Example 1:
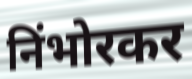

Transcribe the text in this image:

निंभोरकर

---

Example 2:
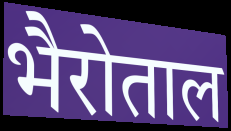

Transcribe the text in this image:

भैरोताल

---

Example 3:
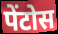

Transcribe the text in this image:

पेंटोस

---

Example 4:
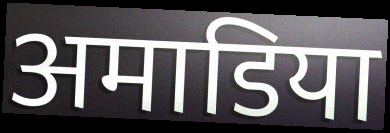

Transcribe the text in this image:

अमाडिया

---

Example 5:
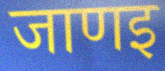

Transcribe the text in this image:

जाणइ